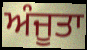
ਅੰਜੂਤਾ